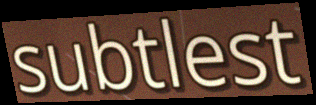
subtlest